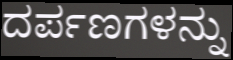
ದರ್ಪಣಗಳನ್ನು